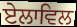
ਏਲਾਵਿਲ